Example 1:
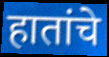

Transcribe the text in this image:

हातांचे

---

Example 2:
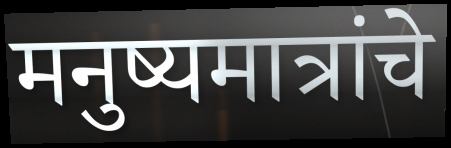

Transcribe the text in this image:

मनुष्यमात्रांचे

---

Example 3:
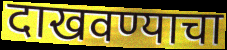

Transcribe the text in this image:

दाखवण्याचा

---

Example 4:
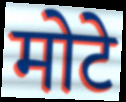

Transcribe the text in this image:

मोटे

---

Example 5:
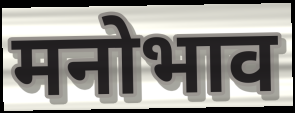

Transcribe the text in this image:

मनोभाव